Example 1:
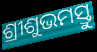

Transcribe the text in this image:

ଶ୍ରୀଶୁଭମସ୍ତୁ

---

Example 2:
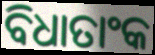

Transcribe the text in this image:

ବିଧାତାଂକ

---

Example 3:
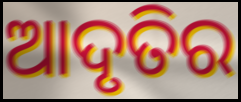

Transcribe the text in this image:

ଆଦୃତିର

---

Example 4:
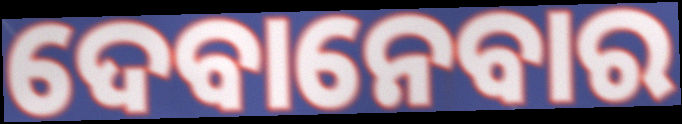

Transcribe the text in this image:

ଦେବାନେବାର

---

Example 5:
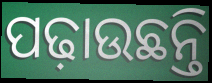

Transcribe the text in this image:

ପଢ଼ାଉଛନ୍ତି